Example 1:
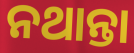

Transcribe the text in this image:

ନଥାନ୍ତା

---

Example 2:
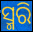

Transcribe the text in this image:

ସ୍ମରି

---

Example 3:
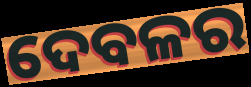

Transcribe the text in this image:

ଦେବଳର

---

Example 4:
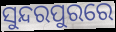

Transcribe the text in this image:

ସୁନ୍ଦରପୁରରେ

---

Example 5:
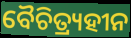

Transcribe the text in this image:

ବୈଚିତ୍ର୍ୟହୀନ